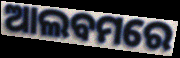
ଆଲବମରେ